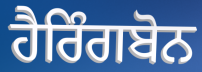
ਹੈਰਿੰਗਬੋਨ